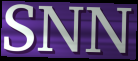
SNN